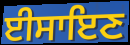
ਈਸਾਇਣ